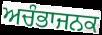
ਅਚੰਭਾਜਨਕ